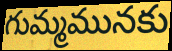
గుమ్మమునకు